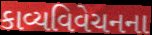
કાવ્યવિવેચનના